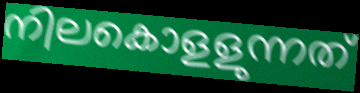
നിലകൊളളുന്നത്